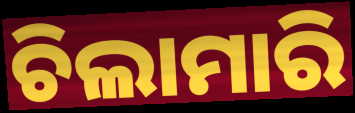
ଚିଲାମାରି